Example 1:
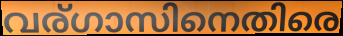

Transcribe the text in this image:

വര്ഗാസിനെതിരെ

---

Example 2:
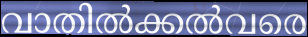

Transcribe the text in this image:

വാതിൽക്കൽവരെ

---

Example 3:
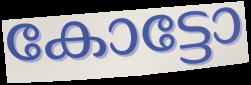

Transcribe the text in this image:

കോട്ടോ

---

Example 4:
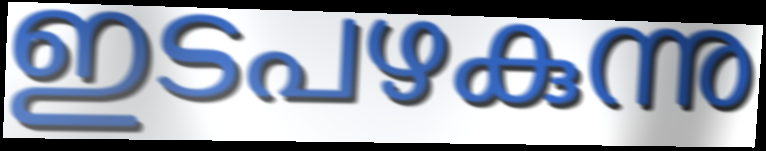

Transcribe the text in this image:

ഇടപഴകുന്നു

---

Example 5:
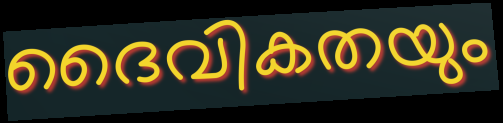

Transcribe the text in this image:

ദൈവികതയും